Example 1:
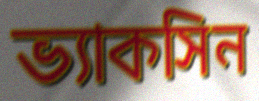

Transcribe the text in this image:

ভ্যাকসিন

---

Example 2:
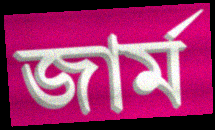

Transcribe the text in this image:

জার্ম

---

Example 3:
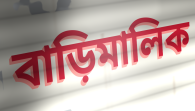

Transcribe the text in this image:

বাড়িমালিক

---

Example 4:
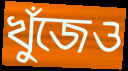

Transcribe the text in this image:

খুঁজেও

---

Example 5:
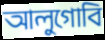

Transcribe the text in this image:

আলুগোবি